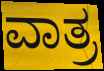
ವಾತ್ರ